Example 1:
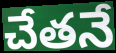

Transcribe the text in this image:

చేతనే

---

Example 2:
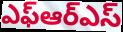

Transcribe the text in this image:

ఎఫ్ఆర్ఎస్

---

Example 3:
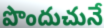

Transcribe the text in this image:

పొందుచునే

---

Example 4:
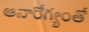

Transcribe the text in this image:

ఆనారోగ్యంతో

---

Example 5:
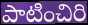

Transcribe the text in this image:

పాటించిరి